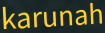
karunah